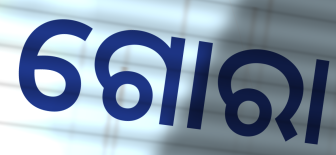
ଗୋରା